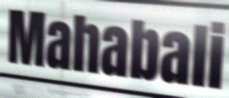
Mahabali